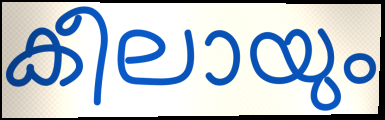
കീലായും